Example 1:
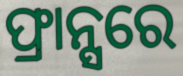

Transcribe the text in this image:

ଫ୍ରାନ୍ସରେ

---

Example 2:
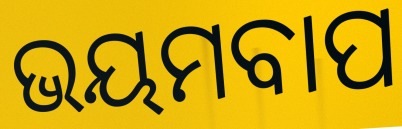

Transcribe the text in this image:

ଭୟମବାପ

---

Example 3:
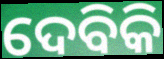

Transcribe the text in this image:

ଦେବିକି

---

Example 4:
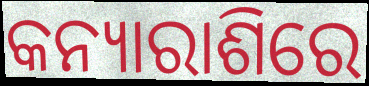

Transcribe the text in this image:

କନ୍ୟାରାଶିରେ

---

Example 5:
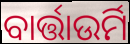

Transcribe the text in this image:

ବାର୍ତ୍ତାଉର୍ମି